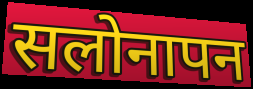
सलोनापन